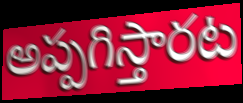
అప్పగిస్తారట